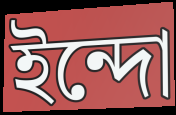
ইন্দো